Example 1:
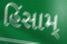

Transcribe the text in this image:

હિંસામ્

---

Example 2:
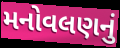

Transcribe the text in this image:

મનોવલણનું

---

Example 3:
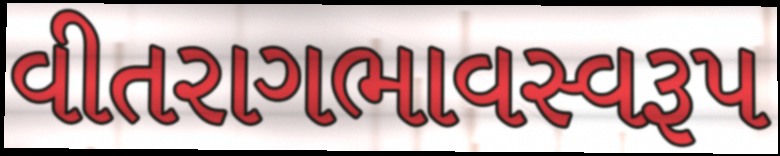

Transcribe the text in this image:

વીતરાગભાવસ્વરૂપ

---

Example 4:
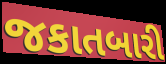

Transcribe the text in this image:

જકાતબારી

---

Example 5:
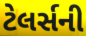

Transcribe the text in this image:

ટેલર્સની